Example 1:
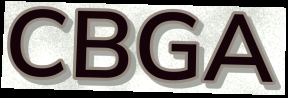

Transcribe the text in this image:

CBGA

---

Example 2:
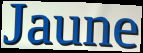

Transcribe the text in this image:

Jaune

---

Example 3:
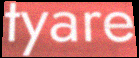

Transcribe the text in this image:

tyare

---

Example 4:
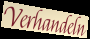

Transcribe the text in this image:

Verhandeln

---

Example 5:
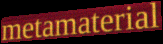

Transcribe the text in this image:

metamaterial